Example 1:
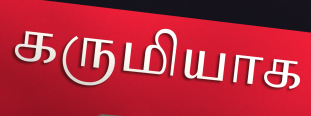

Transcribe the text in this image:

கருமியாக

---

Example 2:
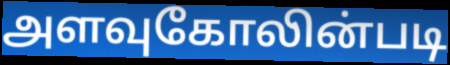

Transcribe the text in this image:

அளவுகோலின்படி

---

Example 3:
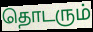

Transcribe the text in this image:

தொடரும்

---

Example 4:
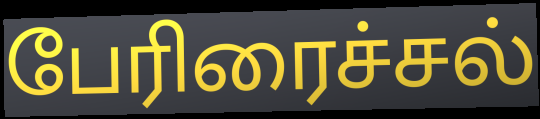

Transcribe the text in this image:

பேரிரைச்சல்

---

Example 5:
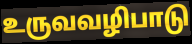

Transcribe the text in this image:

உருவவழிபாடு